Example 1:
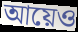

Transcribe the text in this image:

আয়েও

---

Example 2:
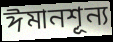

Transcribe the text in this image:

ঈমানশূন্য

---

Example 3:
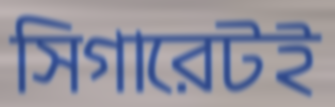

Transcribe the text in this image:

সিগারেটই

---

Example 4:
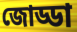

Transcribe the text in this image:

জোড্ডা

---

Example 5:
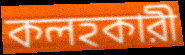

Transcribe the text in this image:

কলহকারী